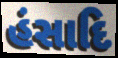
હંસાદિ